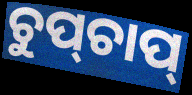
ଚୁପ୍‌ଚାପ୍